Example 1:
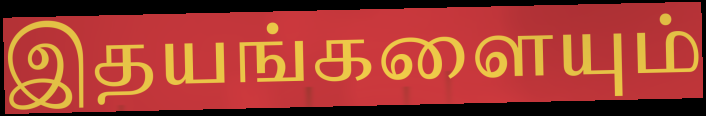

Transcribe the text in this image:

இதயங்களையும்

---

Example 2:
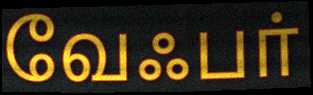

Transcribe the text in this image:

வேஃபர்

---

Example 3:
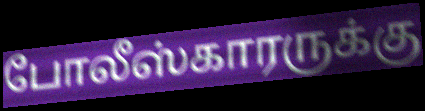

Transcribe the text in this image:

போலீஸ்காரருக்கு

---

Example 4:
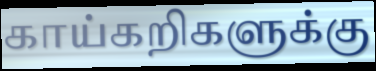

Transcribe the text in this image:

காய்கறிகளுக்கு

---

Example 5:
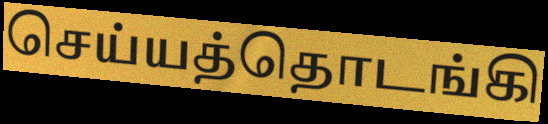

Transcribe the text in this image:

செய்யத்தொடங்கி